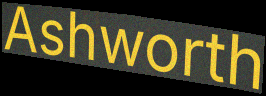
Ashworth